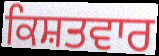
ਕਿਸ਼ਤਵਾਰ